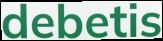
debetis